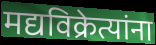
मद्यविक्रेत्यांना